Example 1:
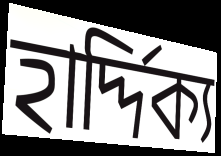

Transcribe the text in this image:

হার্দ্দিক্য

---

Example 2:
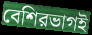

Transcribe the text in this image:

বেশিরভাগই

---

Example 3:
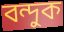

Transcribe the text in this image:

বন্দুক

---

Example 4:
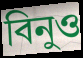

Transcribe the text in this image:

বিনুও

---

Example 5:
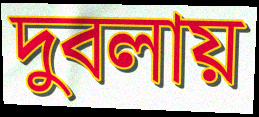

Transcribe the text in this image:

দুবলায়